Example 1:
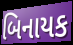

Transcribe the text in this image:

બિનાયક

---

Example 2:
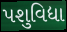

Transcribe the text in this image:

પશુવિદ્યા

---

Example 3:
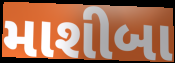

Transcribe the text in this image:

માશીબા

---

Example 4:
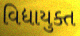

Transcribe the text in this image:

વિદ્યાયુક્ત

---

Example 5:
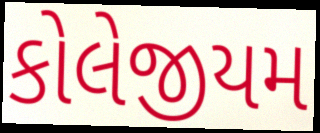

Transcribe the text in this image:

કોલેજીયમ